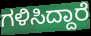
ಗಳಿಸಿದ್ದಾರೆ